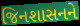
જિનશાસનને